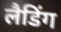
लैडिंग